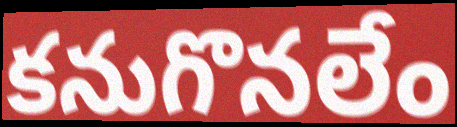
కనుగొనలేం